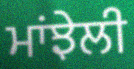
ਮਾਂਝੇਲੀ